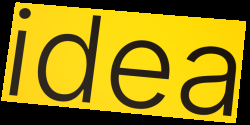
idea